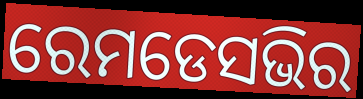
ରେମଡେସଭିର